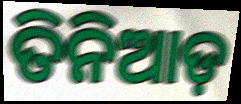
ତିନିଆଡ଼